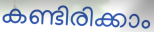
കണ്ടിരിക്കാം